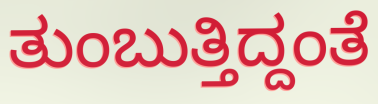
ತುಂಬುತ್ತಿದ್ದಂತೆ